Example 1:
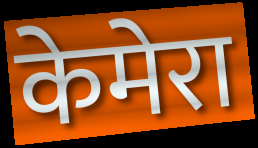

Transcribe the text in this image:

केमेरा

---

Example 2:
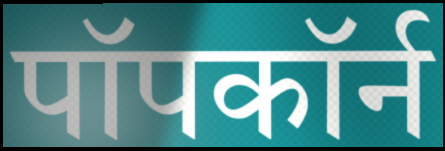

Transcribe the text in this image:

पॉपकॉर्न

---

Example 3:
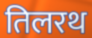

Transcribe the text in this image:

तिलरथ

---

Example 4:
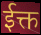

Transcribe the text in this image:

ईक्त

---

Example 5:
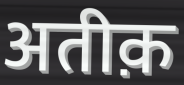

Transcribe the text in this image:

अतीक़